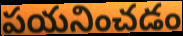
పయనించడం